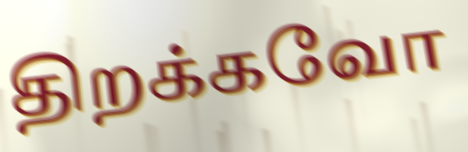
திறக்கவோ